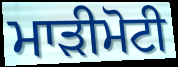
ਮਾੜੀਮੋਟੀ